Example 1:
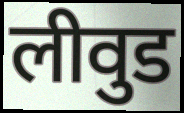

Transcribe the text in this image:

लीवुड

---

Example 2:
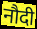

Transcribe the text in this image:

नौदी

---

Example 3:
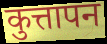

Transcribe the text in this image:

कुत्तापन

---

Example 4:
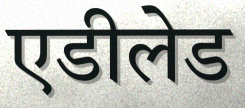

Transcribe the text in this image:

एडीलेड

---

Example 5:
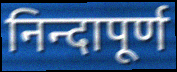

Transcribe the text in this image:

निन्दापूर्ण